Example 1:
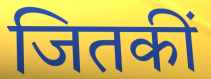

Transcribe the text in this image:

जितकीं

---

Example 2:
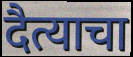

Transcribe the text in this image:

दैत्याचा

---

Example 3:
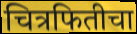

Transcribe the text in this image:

चित्रफितीचा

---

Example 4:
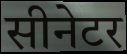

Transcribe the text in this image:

सीनेटर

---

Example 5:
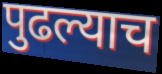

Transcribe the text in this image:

पुढल्याच